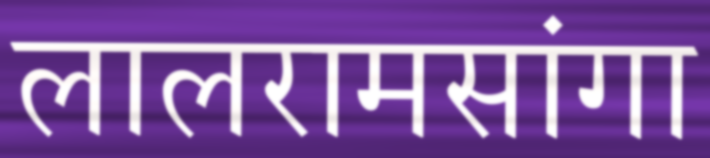
लालरामसांगा